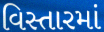
વિસ્તારમાં